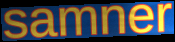
samner